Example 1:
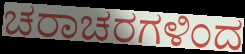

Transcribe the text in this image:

ಚರಾಚರಗಳಿಂದ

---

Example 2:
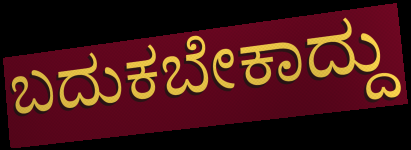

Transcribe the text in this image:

ಬದುಕಬೇಕಾದ್ದು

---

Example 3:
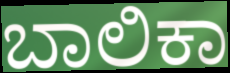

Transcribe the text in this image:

ಬಾಲಿಕಾ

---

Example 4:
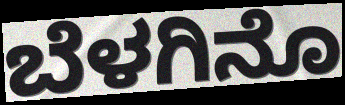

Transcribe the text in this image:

ಬೆಳಗಿನೊ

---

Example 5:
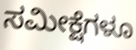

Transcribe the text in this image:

ಸಮೀಕ್ಷೆಗಳೂ